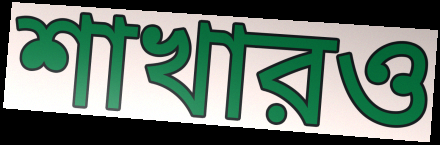
শাখারও